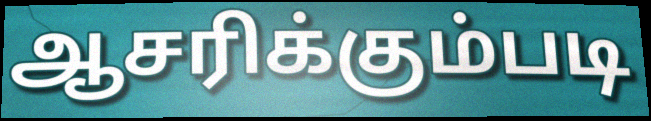
ஆசரிக்கும்படி